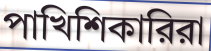
পাখিশিকারিরা